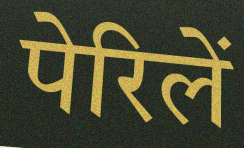
पेरिलें